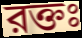
রক্তঃ